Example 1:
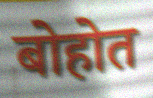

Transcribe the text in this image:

बोहोत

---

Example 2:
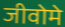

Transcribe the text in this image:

जीवोमे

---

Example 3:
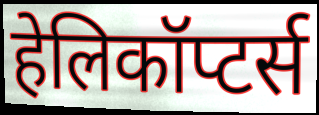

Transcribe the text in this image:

हेलिकॉप्टर्स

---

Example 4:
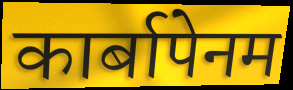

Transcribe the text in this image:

कार्बापेनम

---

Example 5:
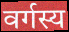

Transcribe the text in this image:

वर्गस्य